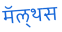
मॅल्थस